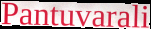
Pantuvarali